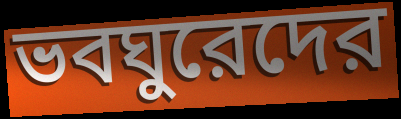
ভবঘুরেদের